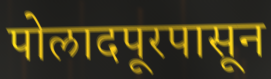
पोलादपूरपासून